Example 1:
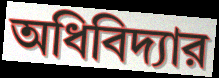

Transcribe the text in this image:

অধিবিদ্যার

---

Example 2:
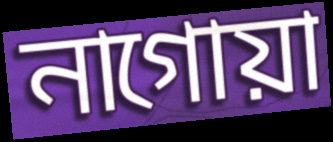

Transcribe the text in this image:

নাগোয়া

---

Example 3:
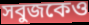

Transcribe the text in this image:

সবুজকেও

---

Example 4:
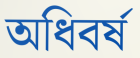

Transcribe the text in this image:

অধিবর্ষ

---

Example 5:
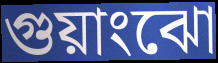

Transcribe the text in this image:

গুয়াংঝো